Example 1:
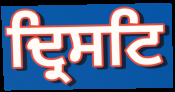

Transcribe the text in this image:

ਦ੍ਰਿਸਟਿ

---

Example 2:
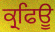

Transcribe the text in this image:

ਕ੍ਰਫਿਊ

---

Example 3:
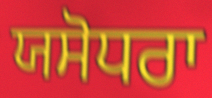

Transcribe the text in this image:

ਯਸੋਧਰਾ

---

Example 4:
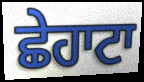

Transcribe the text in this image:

ਛੇਹਾਟਾ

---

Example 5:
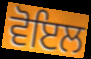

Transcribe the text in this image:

ਵੋਇਲ